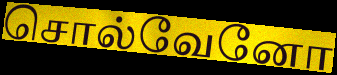
சொல்வேனோ